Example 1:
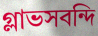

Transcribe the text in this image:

গ্লাভসবন্দি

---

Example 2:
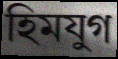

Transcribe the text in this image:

হিমযুগ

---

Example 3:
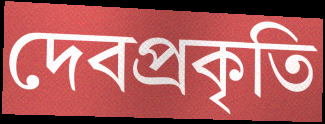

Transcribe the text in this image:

দেবপ্রকৃতি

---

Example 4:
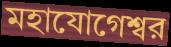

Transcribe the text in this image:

মহাযোগেশ্বর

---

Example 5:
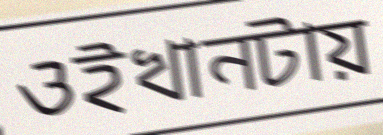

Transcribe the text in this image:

ওইখানটায়